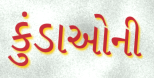
કુંડાઓની